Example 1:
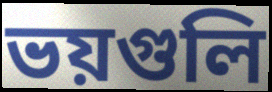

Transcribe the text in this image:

ভয়গুলি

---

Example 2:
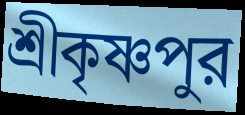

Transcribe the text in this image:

শ্রীকৃষ্ণপুর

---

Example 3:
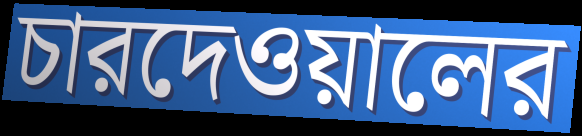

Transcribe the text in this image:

চারদেওয়ালের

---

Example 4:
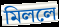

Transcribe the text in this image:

মিললে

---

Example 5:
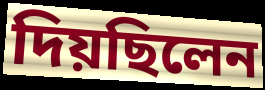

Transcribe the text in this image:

দিয়ছিলেন